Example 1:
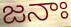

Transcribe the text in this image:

జనాః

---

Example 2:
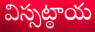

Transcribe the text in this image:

విస్సట్ఠాయ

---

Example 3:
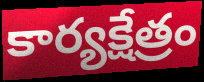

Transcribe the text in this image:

కార్యక్షేత్రం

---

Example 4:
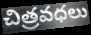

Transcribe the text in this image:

చిత్రవధలు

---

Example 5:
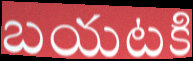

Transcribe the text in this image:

బయటకి